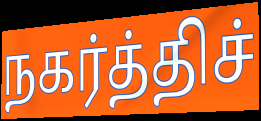
நகர்த்திச்